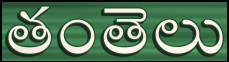
తంతెలు